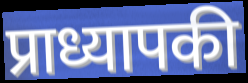
प्राध्यापकी